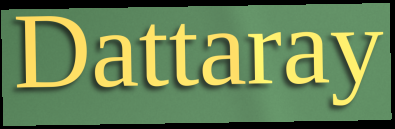
Dattaray